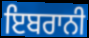
ਇਬਰਾਨੀ